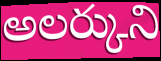
అలర్కుని